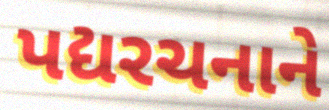
પદ્યરચનાને